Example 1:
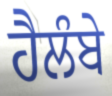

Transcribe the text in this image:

ਹੈਲੰਬੇ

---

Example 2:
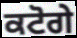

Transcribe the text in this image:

ਕਟੋਗੇ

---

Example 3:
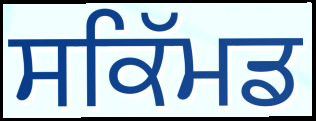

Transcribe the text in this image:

ਸਕਿੱਮਡ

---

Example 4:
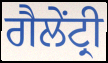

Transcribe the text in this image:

ਗੈਲੇਂਟ੍ਰੀ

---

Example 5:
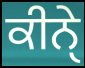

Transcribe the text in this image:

ਕੀਨੇੑ